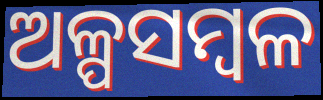
ଅଳ୍ପସମ୍ବଳ